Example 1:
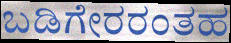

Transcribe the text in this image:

ಬಡಿಗೇರರಂತಹ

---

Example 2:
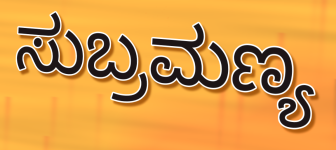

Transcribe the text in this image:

ಸುಬ್ರಮಣ್ಯ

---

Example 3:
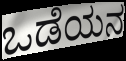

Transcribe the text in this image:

ಒಡೆಯನ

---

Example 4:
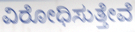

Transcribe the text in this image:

ವಿರೋಧಿಸುತ್ತೇವೆ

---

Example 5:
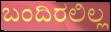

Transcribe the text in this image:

ಬಂದಿರಲಿಲ್ಲ